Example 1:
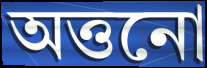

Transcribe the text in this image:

অত্তনো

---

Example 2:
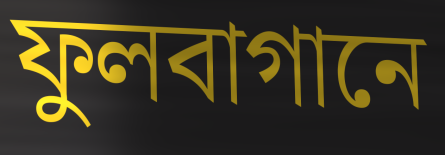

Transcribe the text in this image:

ফুলবাগানে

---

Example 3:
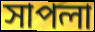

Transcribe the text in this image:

সাপলা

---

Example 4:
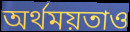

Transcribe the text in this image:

অর্থময়তাও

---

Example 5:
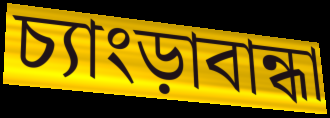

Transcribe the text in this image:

চ্যাংড়াবান্ধা